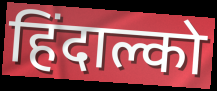
हिंदाल्को